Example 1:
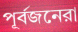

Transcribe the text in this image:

পূর্বজনেরা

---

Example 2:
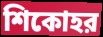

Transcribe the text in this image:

শিকোহর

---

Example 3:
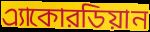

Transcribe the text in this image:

এ্যাকোরডিয়ান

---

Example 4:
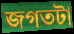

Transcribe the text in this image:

জগতটা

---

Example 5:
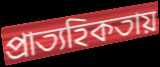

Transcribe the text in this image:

প্রাত্যহিকতায়